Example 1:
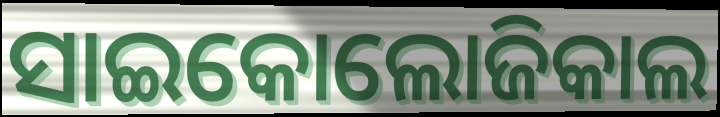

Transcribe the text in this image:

ସାଇକୋଲୋଜିକାଲ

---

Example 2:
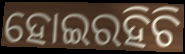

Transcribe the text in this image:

ହୋଇରହିଚି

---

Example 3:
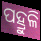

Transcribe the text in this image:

ପହ୍ରୁଳି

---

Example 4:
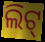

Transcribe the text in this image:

ଲିଟ୍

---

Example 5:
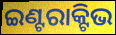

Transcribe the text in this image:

ଇଣ୍ଟରାକ୍ଟିଭ